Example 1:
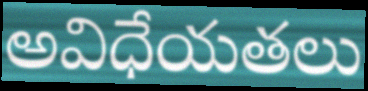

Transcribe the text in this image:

అవిధేయతలు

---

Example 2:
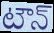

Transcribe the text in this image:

టౌన్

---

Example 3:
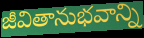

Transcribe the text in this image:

జీవితానుభవాన్ని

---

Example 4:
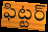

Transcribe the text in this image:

ఫిట్టర్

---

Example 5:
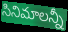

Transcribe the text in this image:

సినిమాలన్నీ